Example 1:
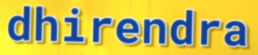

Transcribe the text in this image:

dhirendra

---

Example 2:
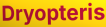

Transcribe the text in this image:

Dryopteris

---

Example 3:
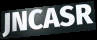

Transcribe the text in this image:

JNCASR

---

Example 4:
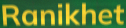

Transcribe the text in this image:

Ranikhet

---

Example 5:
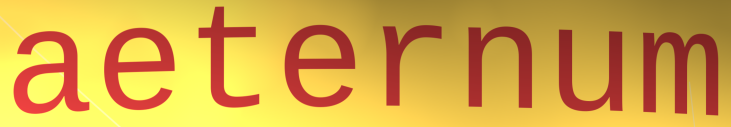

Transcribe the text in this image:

aeternum